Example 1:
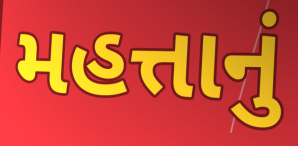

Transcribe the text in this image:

મહત્તાનું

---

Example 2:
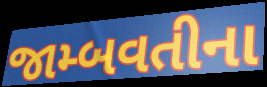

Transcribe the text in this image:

જામ્બવતીના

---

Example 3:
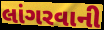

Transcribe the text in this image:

લાંગરવાની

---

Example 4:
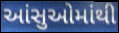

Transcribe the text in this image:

આંસુઓમાંથી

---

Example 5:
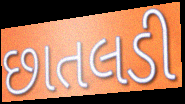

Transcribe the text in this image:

છાતલડી